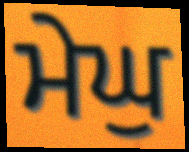
ਮੇਘੁ